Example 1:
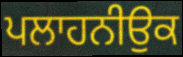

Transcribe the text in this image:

ਪਲਾਹਨੀਉਕ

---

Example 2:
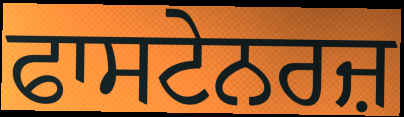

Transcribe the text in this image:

ਫਾਸਟੇਨਰਜ਼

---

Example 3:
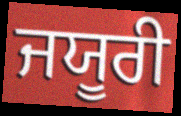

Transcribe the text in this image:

ਜਯੂਰੀ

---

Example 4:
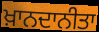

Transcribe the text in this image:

ਖ਼ਾਨਦਾਨੀਤਾ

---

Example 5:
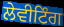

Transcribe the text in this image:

ਲੇਵੀਟਿੰਗ